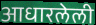
आधारलेली